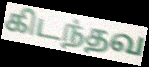
கிடந்தவ